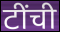
टींची